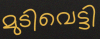
മുടിവെട്ടി